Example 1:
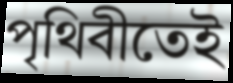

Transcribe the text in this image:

পৃথিবীতেই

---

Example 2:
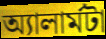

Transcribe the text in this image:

অ্যালার্মটা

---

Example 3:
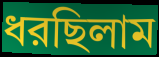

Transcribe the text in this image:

ধরছিলাম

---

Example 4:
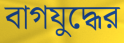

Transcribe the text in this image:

বাগযুদ্ধের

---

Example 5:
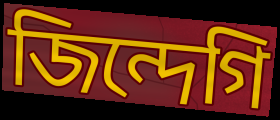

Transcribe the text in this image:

জিন্দেগি